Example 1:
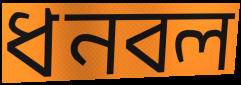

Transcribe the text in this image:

ধনবল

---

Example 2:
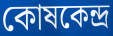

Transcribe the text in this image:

কোষকেন্দ্ৰ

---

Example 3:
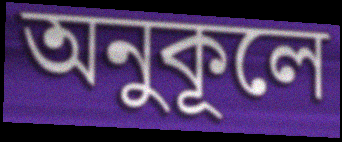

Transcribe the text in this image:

অনুকূলে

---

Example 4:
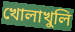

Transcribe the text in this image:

খোলাখুলি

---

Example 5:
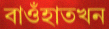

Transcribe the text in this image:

বাওঁহাতখন